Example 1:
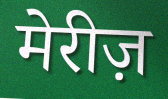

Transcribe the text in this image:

मेरीज़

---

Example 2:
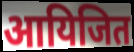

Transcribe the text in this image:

आयिजित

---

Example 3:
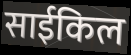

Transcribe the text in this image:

साईकिल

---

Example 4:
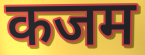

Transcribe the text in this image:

कजम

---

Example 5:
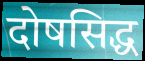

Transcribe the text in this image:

दोषसिद्ध